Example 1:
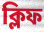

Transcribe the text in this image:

ক্লিফ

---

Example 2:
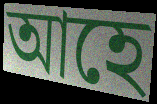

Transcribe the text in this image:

আহে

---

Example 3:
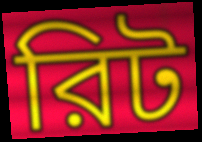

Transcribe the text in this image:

রিট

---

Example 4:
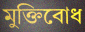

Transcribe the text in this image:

মুক্তিবোধ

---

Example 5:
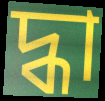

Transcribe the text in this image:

দ্ধা